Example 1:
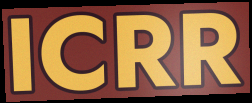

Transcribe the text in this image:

ICRR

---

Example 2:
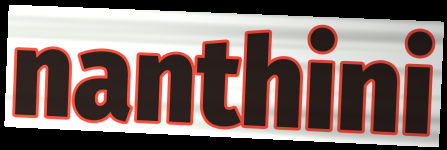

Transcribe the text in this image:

nanthini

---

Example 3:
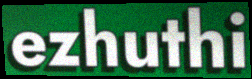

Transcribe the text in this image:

ezhuthi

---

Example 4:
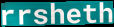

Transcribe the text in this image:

rrsheth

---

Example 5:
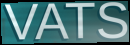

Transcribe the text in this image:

VATS